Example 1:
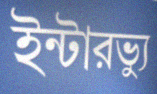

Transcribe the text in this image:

ইন্টারভ্যু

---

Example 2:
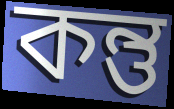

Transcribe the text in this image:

কন্তু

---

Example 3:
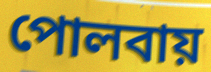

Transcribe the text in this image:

পোলবায়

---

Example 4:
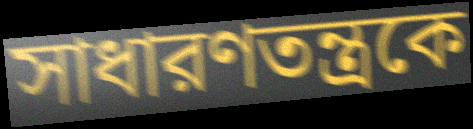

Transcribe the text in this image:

সাধারণতন্ত্রকে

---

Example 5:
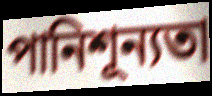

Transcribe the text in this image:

পানিশূন্যতা